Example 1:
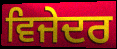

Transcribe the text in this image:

ਵਿਜੇਦਰ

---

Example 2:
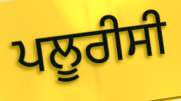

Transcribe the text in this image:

ਪਲੂਰੀਸੀ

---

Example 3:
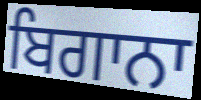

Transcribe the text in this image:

ਬਿਗਾਨਾ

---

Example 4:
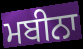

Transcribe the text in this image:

ਮਬੀਨਾ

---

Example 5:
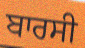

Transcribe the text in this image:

ਬਾਰਸੀ